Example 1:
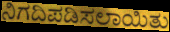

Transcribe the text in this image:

ನಿಗದಿಪಡಿಸಲಾಯಿತು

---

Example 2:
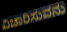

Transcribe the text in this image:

ವಿಚಾರಿಸುವನು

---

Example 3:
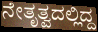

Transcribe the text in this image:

ನೇತೃತ್ವದಲ್ಲಿದ್ದ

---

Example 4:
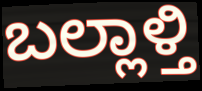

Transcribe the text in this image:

ಬಲ್ಲಾಳ್ತಿ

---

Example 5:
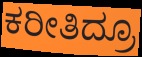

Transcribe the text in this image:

ಕರೀತಿದ್ರೂ